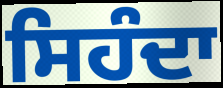
ਸਿਹੰਦਾ